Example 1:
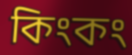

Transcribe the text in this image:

কিংকং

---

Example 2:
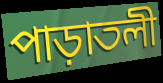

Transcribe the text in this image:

পাড়াতলী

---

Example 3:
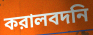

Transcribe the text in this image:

করালবদনি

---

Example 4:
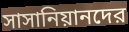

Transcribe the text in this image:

সাসানিয়ানদের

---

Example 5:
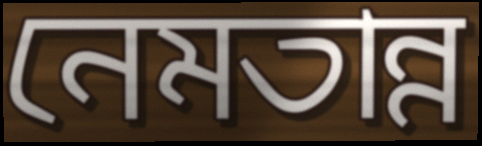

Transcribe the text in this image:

নেমতান্ন